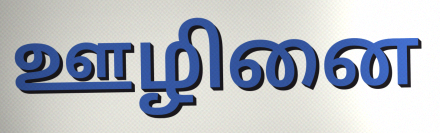
ஊழினை